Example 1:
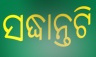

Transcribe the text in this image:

ସଦ୍ଧାନ୍ତଟି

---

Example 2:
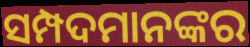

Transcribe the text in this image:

ସମ୍ପଦମାନଙ୍କର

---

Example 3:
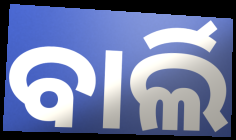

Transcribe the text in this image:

ବାର୍ଲି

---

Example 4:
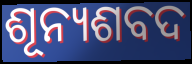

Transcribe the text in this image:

ଶୂନ୍ୟଶବଦ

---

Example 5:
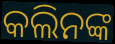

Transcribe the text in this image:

କଲିନଙ୍କ